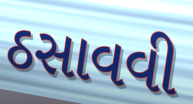
ઠસાવવી